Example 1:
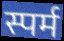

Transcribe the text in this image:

स्पर्म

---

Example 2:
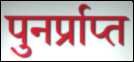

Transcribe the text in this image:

पुनर्प्राप्त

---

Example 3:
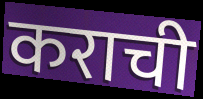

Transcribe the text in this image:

कराची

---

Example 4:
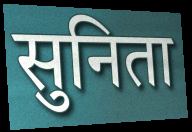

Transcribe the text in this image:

सुनिता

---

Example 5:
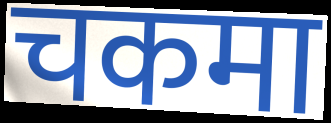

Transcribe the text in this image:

चकमा